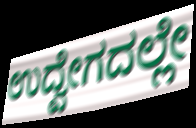
ಉದ್ವೇಗದಲ್ಲೇ